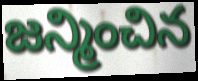
జన్మించిన